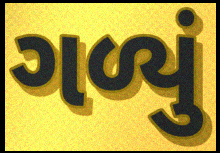
ગળ્યું